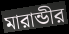
মারান্ডীর